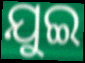
ଯୁଇ